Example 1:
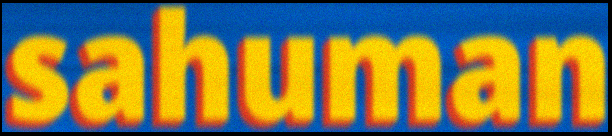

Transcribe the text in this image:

sahuman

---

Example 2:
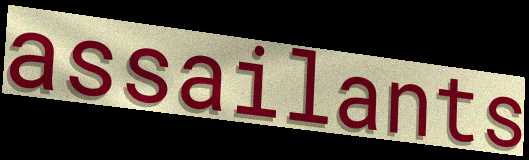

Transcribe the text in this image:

assailants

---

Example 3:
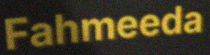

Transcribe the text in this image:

Fahmeeda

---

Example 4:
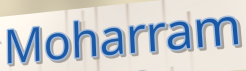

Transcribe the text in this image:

Moharram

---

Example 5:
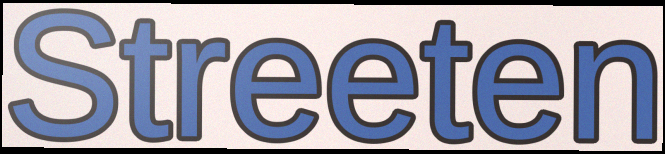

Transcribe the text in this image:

Streeten